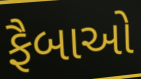
ફૈબાઓ